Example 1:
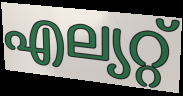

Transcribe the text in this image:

എല്യറ്റ്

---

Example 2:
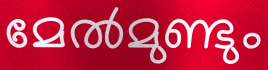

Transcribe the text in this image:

മേൽമുണ്ടും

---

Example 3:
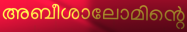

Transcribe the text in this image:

അബീശാലോമിന്റെ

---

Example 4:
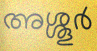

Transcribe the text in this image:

അശ്ശൂർ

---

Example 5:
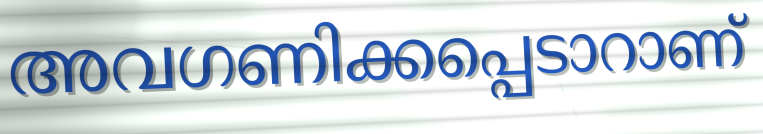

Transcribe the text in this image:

അവഗണിക്കപ്പെടാറാണ്